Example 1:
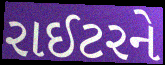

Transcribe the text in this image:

રાઈટરને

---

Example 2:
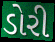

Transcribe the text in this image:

ડોરી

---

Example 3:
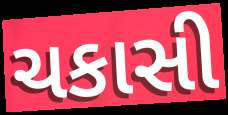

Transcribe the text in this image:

ચકાસી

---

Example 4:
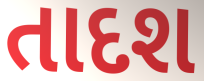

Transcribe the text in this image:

તાદશ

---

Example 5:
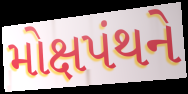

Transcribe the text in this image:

મોક્ષપંથને